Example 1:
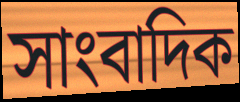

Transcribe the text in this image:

সাংবাদিক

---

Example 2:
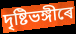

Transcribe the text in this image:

দৃষ্টিভঙ্গীৰে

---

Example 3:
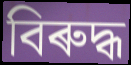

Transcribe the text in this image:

বিৰুদ্ধ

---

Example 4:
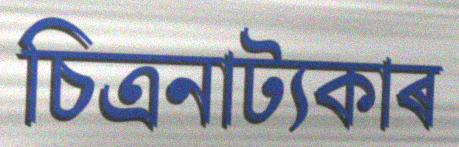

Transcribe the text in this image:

চিত্ৰনাট্যকাৰ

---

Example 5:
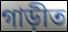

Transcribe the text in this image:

গাড়ীত